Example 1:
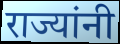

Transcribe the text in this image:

राज्यांनी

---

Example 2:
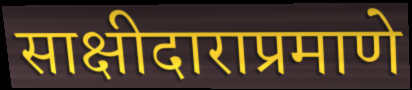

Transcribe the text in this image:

साक्षीदाराप्रमाणे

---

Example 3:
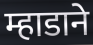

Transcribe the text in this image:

म्हाडाने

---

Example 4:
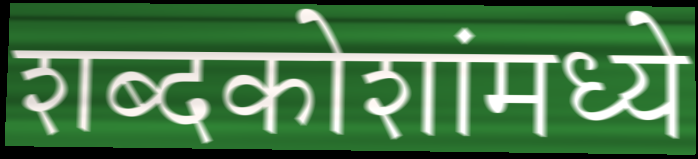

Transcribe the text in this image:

शब्दकोशांमध्ये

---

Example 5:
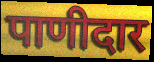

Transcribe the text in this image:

पाणीदार